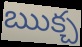
ఋక్చ